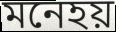
মনেহয়